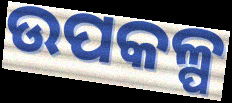
ଉପକଳ୍ପ